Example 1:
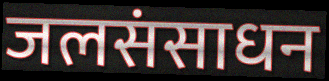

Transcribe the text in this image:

जलसंसाधन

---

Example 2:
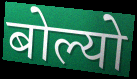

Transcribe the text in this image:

बोल्यो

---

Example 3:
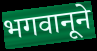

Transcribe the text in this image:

भगवानूने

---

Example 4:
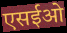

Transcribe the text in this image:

एसईओ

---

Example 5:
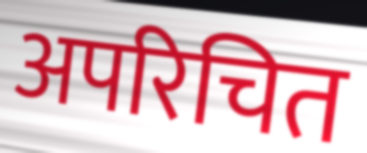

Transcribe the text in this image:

अपरिचित